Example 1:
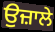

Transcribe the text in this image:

ਉਜ਼ਾਲੇ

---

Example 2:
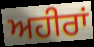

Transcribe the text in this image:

ਅਹੀਰਾਂ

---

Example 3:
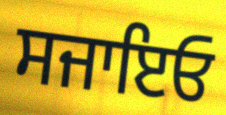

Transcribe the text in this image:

ਸਜਾਇਓ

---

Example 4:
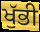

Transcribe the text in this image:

ਖੁੱਭੀ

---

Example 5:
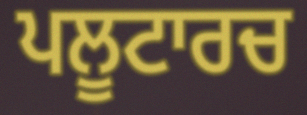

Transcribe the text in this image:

ਪਲੂਟਾਰਚ